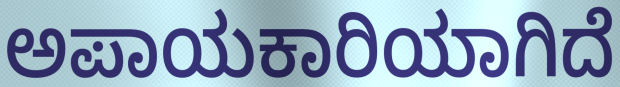
ಅಪಾಯಕಾರಿಯಾಗಿದೆ